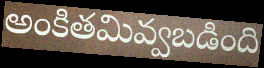
అంకితమివ్వబడింది